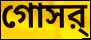
গোসর্